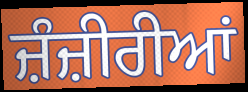
ਜ਼ੰਜ਼ੀਰੀਆਂ